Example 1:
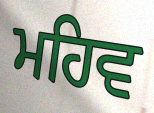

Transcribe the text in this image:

ਮਹਿਵ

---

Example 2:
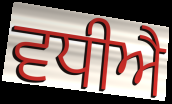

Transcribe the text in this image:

ਵਧੀਐ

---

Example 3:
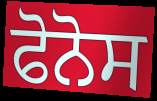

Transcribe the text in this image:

ਫੋਨੋਸ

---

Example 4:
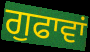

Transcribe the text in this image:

ਗੁਫਾਵਾਂ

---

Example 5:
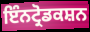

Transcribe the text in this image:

ਇੰਨਟ੍ਰੋਡਕਸ਼ਨ